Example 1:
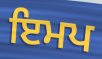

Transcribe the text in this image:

ਇਮਪ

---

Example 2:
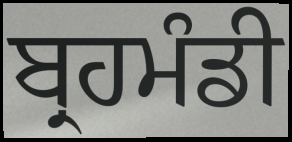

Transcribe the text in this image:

ਬ੍ਰਹਮੰਡੀ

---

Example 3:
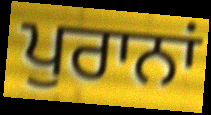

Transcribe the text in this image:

ਪੁਰਾਨਾਂ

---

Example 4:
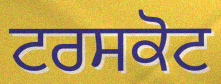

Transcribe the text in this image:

ਟਰਸਕੋਟ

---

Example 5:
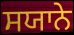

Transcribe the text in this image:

ਸਯਾਨੇ